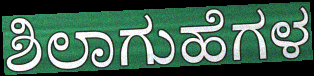
ಶಿಲಾಗುಹೆಗಳ